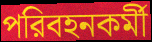
পরিবহনকর্মী